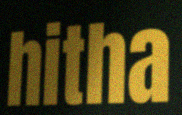
hitha